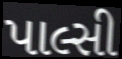
પાલ્સી